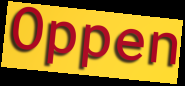
Oppen